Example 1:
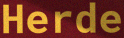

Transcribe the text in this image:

Herde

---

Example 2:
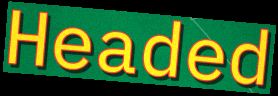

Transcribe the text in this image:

Headed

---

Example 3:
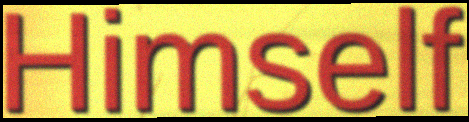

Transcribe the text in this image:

Himself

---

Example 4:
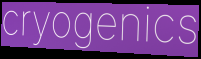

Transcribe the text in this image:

cryogenics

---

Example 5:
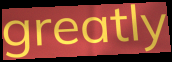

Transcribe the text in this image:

greatly